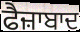
ਫੈਜ਼ਾਬਾਦ